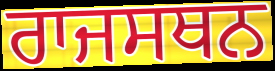
ਰਾਜਸਥਨ